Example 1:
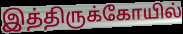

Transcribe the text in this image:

இத்திருக்கோயில்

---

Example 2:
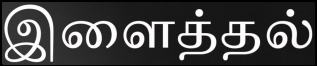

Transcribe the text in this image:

இளைத்தல்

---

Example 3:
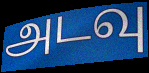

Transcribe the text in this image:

அடவு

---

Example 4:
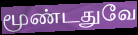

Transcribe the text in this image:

மூண்டதுவே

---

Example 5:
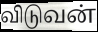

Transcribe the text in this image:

விடுவன்